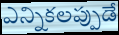
ఎన్నికలప్పుడే